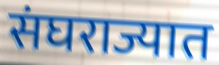
संघराज्यात